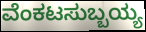
ವೆಂಕಟಸುಬ್ಬಯ್ಯ